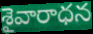
శైవారాధన